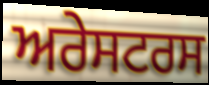
ਅਰੇਸਟਰਸ